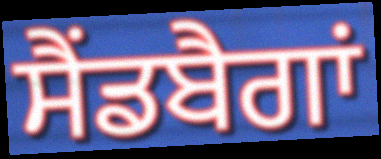
ਸੈਂਡਬੈਗਾਂ